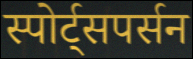
स्पोर्ट्सपर्सन